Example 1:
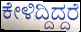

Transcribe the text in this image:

ಕೇಳಿದ್ದಿದ್ದರೆ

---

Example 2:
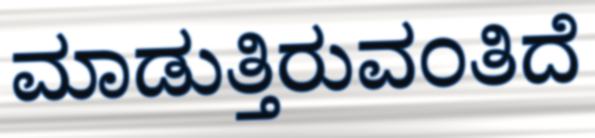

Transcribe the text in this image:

ಮಾಡುತ್ತಿರುವಂತಿದೆ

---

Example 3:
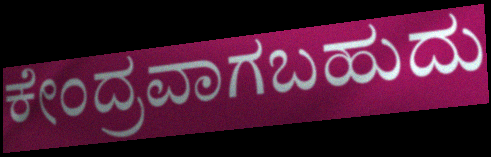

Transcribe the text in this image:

ಕೇಂದ್ರವಾಗಬಹುದು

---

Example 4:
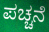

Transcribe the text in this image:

ಪಚ್ಚನೆ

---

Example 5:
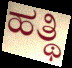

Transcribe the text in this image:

ಹತ್ಥಿ